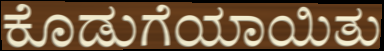
ಕೊಡುಗೆಯಾಯಿತು